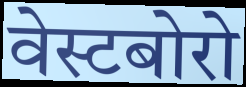
वेस्टबोरो